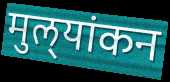
मुल्यांकन